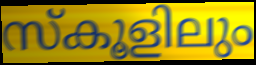
സ്കൂളിലും